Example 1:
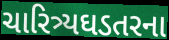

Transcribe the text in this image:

ચારિત્ર્યઘડતરના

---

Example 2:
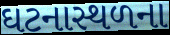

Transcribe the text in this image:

ઘટનાસ્થળના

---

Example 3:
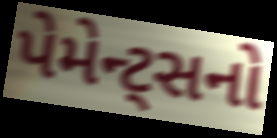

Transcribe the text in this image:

પેમેન્ટ્સનો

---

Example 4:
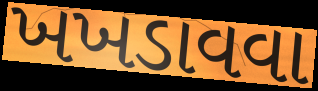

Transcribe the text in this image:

ખખડાવવા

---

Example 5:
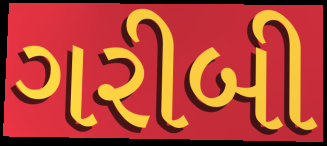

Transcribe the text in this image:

ગરીબી